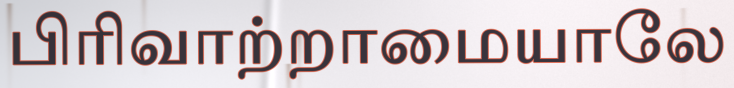
பிரிவாற்றாமையாலே